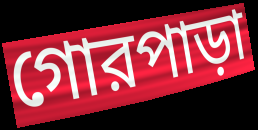
গোরপাড়া